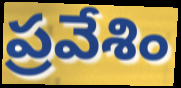
ప్రవేశిం